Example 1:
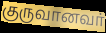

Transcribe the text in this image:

குருவானவர்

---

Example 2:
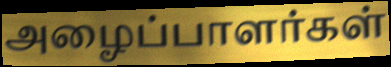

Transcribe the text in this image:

அழைப்பாளர்கள்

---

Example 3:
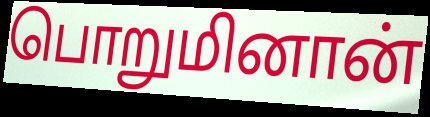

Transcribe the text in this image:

பொறுமினான்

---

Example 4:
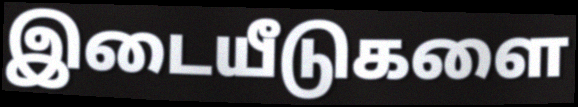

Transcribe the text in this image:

இடையீடுகளை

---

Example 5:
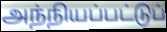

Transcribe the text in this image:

அந்நியப்பட்டுப்